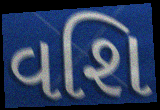
વશિ